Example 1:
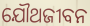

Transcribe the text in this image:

ଯୌଥଜୀବନ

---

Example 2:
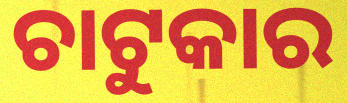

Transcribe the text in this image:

ଚାଟୁକାର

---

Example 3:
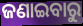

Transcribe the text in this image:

ଜଣାଇବାରୁ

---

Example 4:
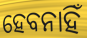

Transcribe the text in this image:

ହେବନାହିଁ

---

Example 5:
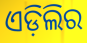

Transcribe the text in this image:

ଏଡ଼ିଲିର